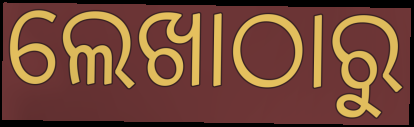
ଲେଖାଠାରୁ